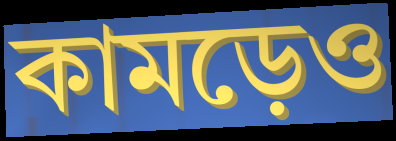
কামড়েও